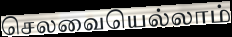
செலவையெல்லாம்